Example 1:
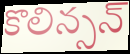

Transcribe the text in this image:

కొలిన్సన్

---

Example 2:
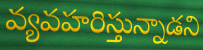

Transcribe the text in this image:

వ్యవహరిస్తున్నాడని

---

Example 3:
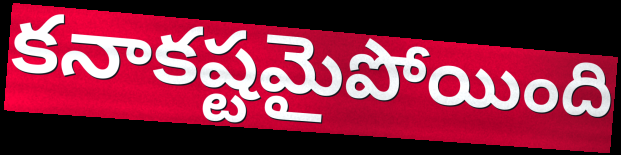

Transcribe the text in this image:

కనాకష్టమైపోయింది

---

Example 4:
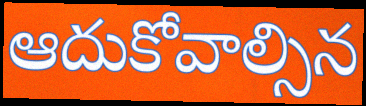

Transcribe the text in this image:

ఆదుకోవాల్సిన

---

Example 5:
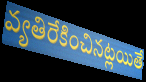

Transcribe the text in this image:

వ్యతిరేకించినట్లయితే